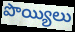
పొయ్యిలు